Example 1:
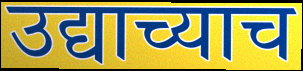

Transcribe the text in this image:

उद्याच्याच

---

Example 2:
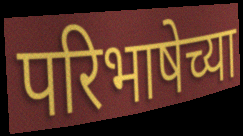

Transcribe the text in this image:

परिभाषेच्या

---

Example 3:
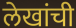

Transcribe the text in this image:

लेखांची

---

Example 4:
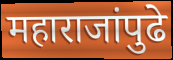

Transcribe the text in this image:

महाराजांपुढे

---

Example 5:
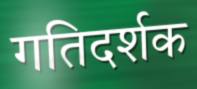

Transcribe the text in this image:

गतिदर्शक